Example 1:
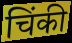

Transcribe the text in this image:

चिंकी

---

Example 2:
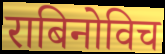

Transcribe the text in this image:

राबिनोविच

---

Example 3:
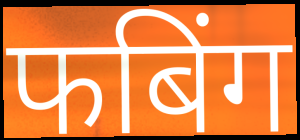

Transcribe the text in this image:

फबिंग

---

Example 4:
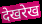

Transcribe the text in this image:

देखरेख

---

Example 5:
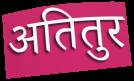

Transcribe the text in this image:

अतितुर